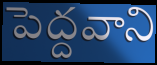
పెద్దవాని